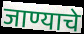
जाण्याचे